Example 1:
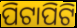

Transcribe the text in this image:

ପିଟାପିଟି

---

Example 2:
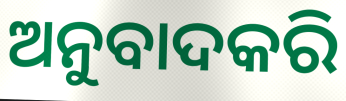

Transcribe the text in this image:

ଅନୁବାଦକରି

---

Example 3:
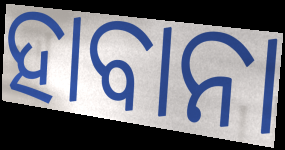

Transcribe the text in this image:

ହାବାନା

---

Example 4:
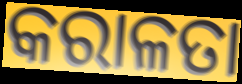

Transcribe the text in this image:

କରାଳତା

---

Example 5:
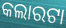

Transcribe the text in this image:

କଲାରଟା